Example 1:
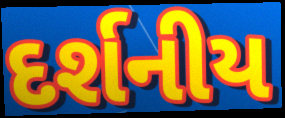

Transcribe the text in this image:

દર્શનીય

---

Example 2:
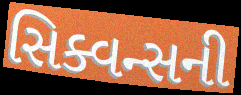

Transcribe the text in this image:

સિક્વન્સની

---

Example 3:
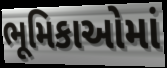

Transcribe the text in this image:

ભૂમિકાઓમાં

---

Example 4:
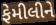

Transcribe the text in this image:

ફેમીલીને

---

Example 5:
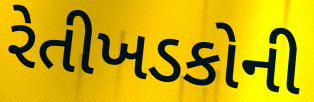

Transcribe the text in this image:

રેતીખડકોની